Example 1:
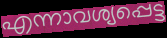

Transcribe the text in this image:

എന്നാവശ്യപ്പെട്ട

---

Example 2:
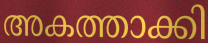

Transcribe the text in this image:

അകത്താക്കി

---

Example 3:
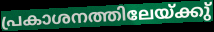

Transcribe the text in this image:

പ്രകാശനത്തിലേയ്ക്കു്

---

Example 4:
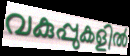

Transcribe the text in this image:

വകുപ്പുകളിൽ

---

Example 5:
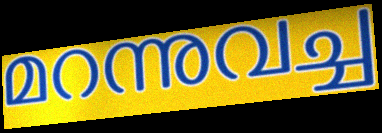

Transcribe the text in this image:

മറന്നുവച്ച